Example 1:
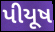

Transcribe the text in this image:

પીયૂષ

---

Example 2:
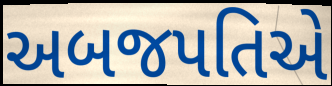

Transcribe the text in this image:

અબજપતિએ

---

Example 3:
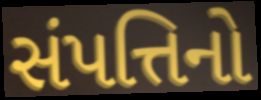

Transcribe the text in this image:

સંપત્તિનો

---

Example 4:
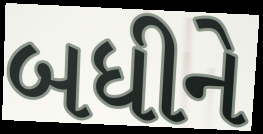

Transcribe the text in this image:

બધીને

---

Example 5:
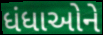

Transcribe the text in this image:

ધંધાઓને